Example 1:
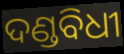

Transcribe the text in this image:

ଦଣ୍ଡବିଧୀ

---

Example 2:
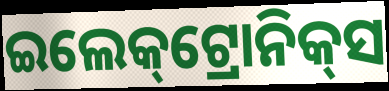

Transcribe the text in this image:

ଇଲେକ୍‌ଟ୍ରୋନିକ୍‌ସ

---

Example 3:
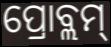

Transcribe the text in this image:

ପ୍ରୋବ୍ଲମ୍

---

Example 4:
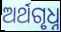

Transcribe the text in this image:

ଅର୍ଥଗୃଧ୍ନ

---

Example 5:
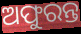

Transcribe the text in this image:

ଅଫୁରନ୍ତ